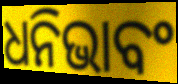
ଧନିଭାବଂ